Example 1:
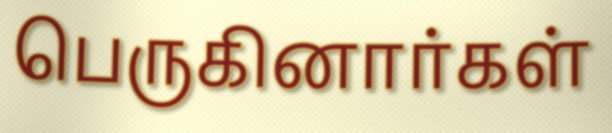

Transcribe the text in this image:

பெருகினார்கள்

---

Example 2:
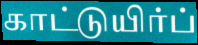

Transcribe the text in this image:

காட்டுயிர்ப்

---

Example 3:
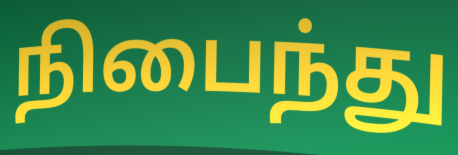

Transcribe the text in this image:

நிபைந்து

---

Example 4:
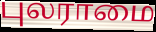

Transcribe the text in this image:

புலராமை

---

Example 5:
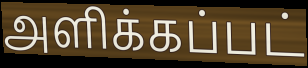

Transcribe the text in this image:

அளிக்கப்பட்